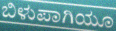
ಬಿಳುಪಾಗಿಯೂ